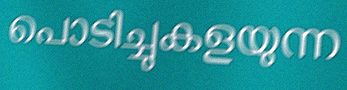
പൊടിച്ചുകളയുന്ന